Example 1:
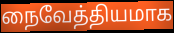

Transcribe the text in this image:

நைவேத்தியமாக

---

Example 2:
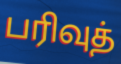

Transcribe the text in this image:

பரிவுத்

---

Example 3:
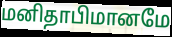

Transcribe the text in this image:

மனிதாபிமானமே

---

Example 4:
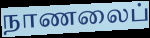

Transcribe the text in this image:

நாணலைப்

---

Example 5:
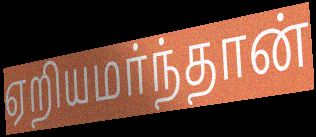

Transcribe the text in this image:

ஏறியமர்ந்தான்